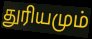
துரியமும்